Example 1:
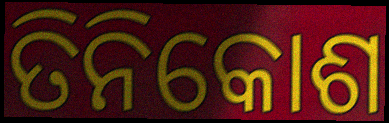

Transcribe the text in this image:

ତିନିକୋଶ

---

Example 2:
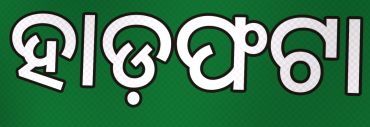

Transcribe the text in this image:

ହାଡ଼ଫଟା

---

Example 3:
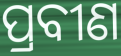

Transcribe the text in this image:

ପ୍ରବୀଣ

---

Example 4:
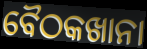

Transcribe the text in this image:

ବୈଠକଖାନା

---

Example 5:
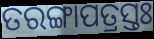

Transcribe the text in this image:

ତରଙ୍ଗାପତ୍ରସ୍ତଃ